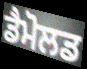
ਡੈਮੋਲਡ